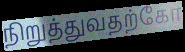
நிறுத்துவதற்கோ